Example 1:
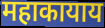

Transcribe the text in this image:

महाकायाय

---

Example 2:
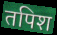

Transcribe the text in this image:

तपिश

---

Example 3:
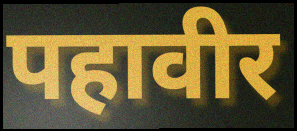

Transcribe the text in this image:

पहावीर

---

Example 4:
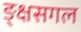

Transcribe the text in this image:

ङ्क्षसगल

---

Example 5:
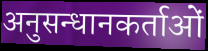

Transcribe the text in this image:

अनुसन्धानकर्ताओं